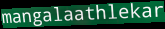
mangalaathlekar